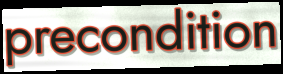
precondition